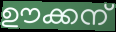
ഊക്കന്